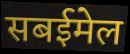
सबईमेल